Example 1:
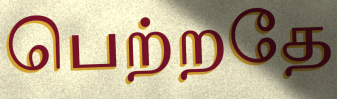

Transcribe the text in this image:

பெற்றதே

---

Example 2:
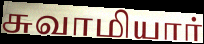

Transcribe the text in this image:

சுவாமியார்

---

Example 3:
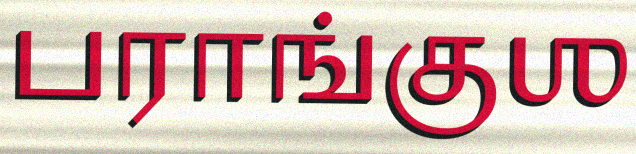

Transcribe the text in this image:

பராங்குஶ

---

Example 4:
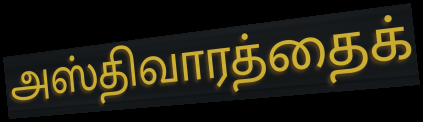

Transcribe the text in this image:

அஸ்திவாரத்தைக்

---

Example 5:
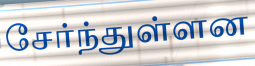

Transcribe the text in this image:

சேர்ந்துள்ளன